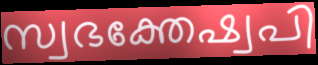
സ്വഭക്തേഷ്വപി